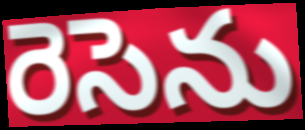
రెసెను